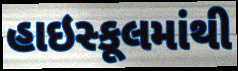
હાઇસ્કૂલમાંથી